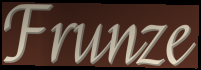
Frunze